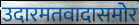
उदारमतवादासमोर